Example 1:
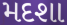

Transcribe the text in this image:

મદશા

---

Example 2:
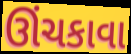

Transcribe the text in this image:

ઊંચકાવા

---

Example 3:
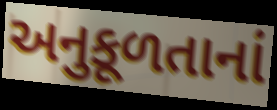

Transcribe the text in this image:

અનુકૂળતાનાં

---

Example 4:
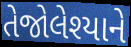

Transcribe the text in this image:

તેજોલેશ્યાને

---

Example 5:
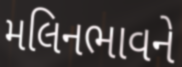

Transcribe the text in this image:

મલિનભાવને